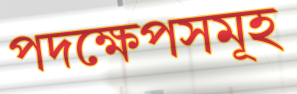
পদক্ষেপসমূহ